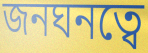
জনঘনত্বে